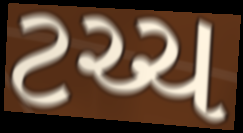
ટચ્ચ